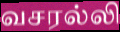
வசரல்லி